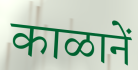
काळानें